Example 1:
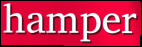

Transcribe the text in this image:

hamper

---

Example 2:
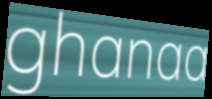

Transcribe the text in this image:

ghanaa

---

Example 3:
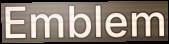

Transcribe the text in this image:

Emblem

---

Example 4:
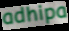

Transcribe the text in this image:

adhipa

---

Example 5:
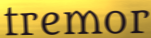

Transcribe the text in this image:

tremor